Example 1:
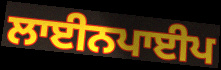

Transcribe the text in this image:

ਲਾਈਨਪਾਈਪ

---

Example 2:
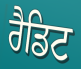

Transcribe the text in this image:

ਰੈਡਿਟ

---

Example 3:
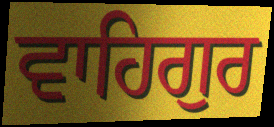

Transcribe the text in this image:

ਵਾਹਿਗੁਰ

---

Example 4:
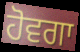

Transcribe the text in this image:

ਹੋਵਗਾ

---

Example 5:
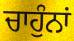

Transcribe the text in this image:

ਚਾਹੁੰਨਾਂ